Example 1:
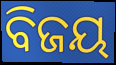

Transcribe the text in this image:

ବିଜୟ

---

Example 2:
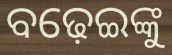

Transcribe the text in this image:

ବଢ଼େଇଙ୍କୁ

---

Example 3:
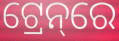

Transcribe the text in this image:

ଟ୍ରେନ୍‌ରେ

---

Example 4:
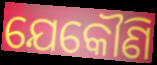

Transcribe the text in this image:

ଯେକୌଣି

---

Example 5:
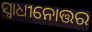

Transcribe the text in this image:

ସ୍ୱାଧୀନୋତ୍ତର